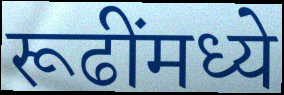
रूढींमध्ये